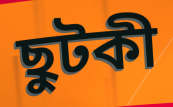
ছুটকী